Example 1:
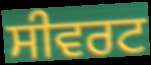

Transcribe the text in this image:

ਸੀਵਰਟ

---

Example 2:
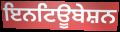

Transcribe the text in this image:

ਇਨਟਿਊਬੇਸ਼ਨ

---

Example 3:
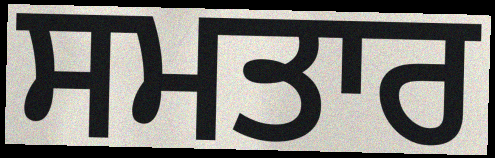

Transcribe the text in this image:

ਸਮਤਾਰ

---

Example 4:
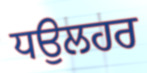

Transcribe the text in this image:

ਧਉਲਹਰ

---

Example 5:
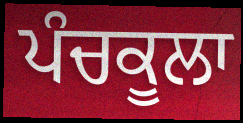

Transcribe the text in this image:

ਪੰਚਕੂਲਾ